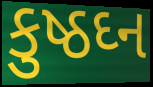
કુષ્ઠઘ્ન